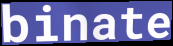
binate